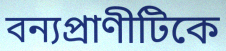
বন্যপ্রাণীটিকে